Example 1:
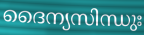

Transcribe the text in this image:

ദൈന്യസിന്ധുഃ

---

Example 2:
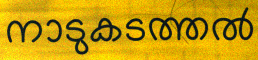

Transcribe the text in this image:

നാടുകടത്തൽ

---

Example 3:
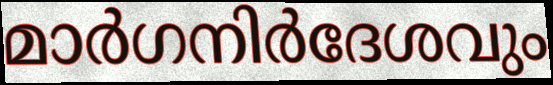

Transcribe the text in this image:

മാർഗനിർദേശവും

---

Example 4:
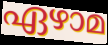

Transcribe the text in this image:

ഏഴാമ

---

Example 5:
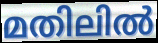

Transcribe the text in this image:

മതിലിൽ